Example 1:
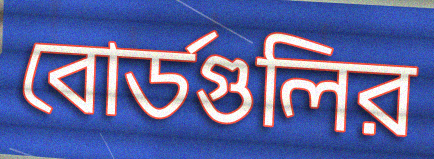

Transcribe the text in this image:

বোর্ডগুলির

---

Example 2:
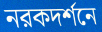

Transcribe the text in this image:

নরকদর্শনে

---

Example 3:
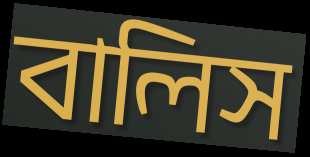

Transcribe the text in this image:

বালিস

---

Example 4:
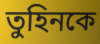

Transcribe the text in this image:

তুহিনকে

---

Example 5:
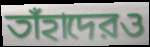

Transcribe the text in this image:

তাঁহাদেরও